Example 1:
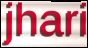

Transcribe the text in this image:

jhari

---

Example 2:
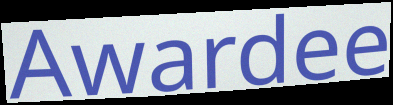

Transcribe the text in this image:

Awardee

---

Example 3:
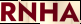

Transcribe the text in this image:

RNHA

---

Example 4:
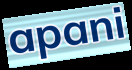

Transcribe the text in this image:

apani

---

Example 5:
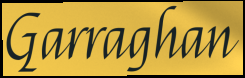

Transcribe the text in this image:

Garraghan